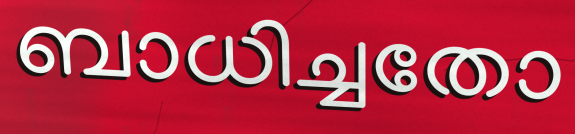
ബാധിച്ചതോ